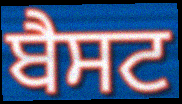
ਬੈਸਟ